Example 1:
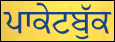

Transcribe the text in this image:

ਪਾਕੇਟਬੁੱਕ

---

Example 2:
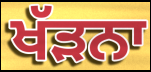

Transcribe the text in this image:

ਖੱੜਨਾ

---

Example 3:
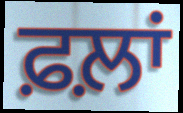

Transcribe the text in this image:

ਫ਼ਲ਼ਾਂ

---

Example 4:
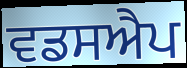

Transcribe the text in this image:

ਵਡਸਐਪ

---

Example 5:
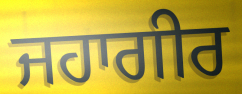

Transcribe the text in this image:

ਜਹਾਗੀਰ